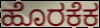
ಹೊರಕೆಕ